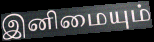
இனிமையும்